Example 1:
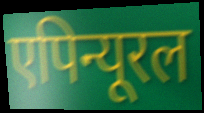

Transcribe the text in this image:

एपिन्यूरल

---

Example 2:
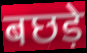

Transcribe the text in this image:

बछड़े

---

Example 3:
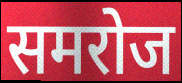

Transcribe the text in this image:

समरोज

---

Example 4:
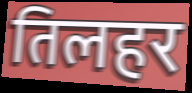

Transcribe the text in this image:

तिलहर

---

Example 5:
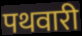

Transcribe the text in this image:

पथवारी